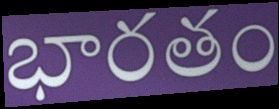
భారతం